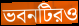
ভবনটিরও